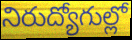
నిరుద్యోగుల్లో